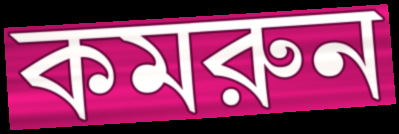
কমরুন